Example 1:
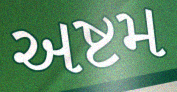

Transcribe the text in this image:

અષ્ટમ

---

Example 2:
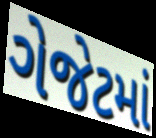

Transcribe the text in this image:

ગેજેટમાં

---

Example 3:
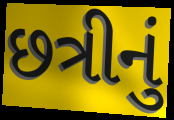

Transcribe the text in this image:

છત્રીનું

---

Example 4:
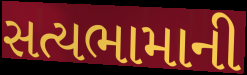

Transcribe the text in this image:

સત્યભામાની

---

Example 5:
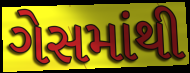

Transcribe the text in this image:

ગેસમાંથી